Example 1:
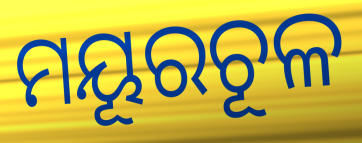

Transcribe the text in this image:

ମୟୂରଚୂଳ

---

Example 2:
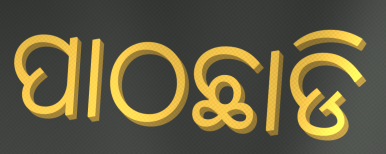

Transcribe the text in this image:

ପାଠଛାଡି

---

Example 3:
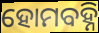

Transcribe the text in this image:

ହୋମବହ୍ନି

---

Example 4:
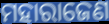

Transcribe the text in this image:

ମହାରାଜେଣ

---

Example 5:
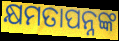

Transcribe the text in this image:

କ୍ଷମତାପନ୍ନଙ୍କ